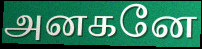
அனகனே